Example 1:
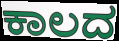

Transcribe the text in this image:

ಕಾಲದ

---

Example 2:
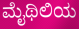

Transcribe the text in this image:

ಮೈಥಿಲಿಯ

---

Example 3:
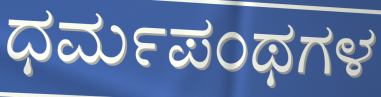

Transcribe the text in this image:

ಧರ್ಮಪಂಥಗಳ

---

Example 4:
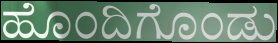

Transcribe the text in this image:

ಹೊಂದಿಗೊಂಡು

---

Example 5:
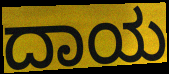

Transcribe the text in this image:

ದಾಯ